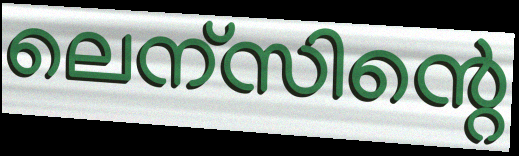
ലെന്സിന്റെ